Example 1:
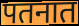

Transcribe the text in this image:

पतनात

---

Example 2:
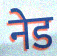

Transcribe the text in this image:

नेड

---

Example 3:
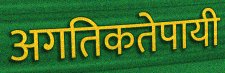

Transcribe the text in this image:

अगतिकतेपायी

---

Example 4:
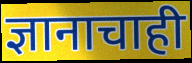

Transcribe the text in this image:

ज्ञानाचाही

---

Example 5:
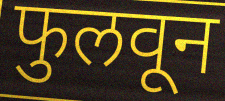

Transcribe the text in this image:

फुलवून